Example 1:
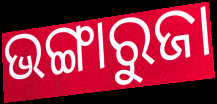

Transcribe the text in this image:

ଭଙ୍ଗାରୁଜା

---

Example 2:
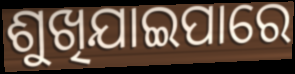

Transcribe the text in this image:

ଶୁଖିଯାଇପାରେ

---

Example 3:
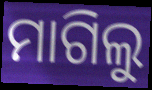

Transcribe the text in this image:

ମାଗିଲୁ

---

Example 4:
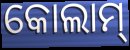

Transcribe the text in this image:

କୋଲାମ୍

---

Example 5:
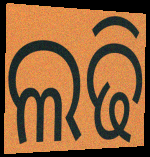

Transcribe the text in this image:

ଲଢି